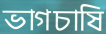
ভাগচাষি